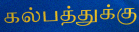
கல்பத்துக்கு